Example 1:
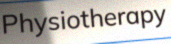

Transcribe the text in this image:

Physiotherapy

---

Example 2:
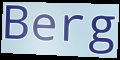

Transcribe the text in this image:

Berg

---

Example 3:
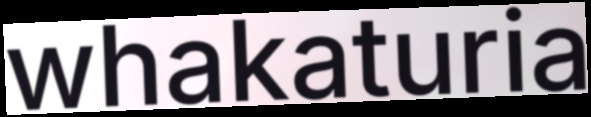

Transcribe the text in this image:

whakaturia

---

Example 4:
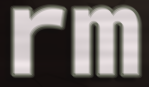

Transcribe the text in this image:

rm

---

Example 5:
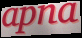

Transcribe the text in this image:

apna